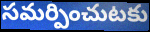
సమర్పించుటకు